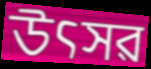
উৎসৱ